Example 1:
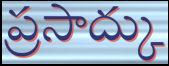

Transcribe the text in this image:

ప్రసాద్కు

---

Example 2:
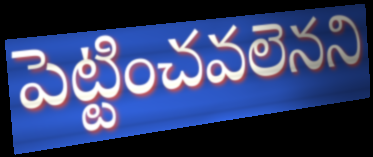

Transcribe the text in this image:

పెట్టించవలెనని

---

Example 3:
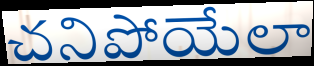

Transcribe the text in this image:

చనిపోయేలా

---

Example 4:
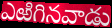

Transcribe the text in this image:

ఎఱిగినవాడు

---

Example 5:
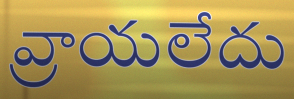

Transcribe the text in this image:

వ్రాయలేదు